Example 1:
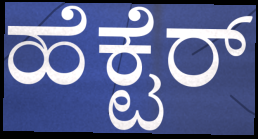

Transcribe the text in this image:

ಹೆಕ್ಟೆರ್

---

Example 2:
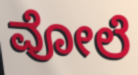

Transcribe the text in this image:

ವೋಲೆ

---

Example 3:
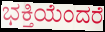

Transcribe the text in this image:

ಭಕ್ತಿಯೆಂದರೆ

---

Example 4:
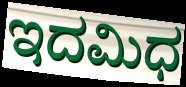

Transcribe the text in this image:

ಇದಮಿಧ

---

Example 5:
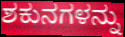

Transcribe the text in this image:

ಶಕುನಗಳನ್ನು